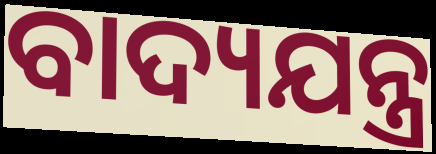
ବାଦ୍ୟଯନ୍ତ୍ର